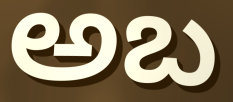
అబ